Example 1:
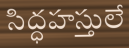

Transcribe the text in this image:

సిద్ధహస్తులే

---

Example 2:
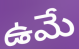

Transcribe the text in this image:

ఉమే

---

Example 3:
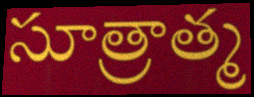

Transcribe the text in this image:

సూత్రాత్మ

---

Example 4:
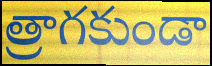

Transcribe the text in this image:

త్రాగకుండా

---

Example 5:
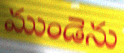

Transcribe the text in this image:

ముండెను